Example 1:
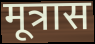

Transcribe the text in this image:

मूत्रास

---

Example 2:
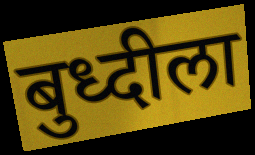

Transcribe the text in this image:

बुध्दीला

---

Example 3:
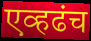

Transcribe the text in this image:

एव्हढंच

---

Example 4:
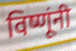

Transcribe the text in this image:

विष्णूंनी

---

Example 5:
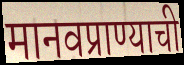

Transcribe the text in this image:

मानवप्राण्याची